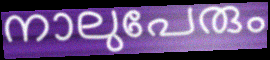
നാലുപേരും